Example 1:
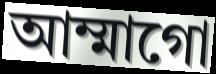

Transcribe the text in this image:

আম্মাগো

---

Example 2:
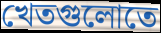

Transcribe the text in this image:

খেতগুলোতে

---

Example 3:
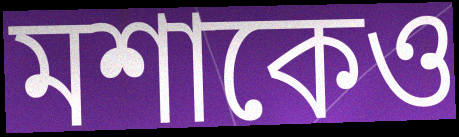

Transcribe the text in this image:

মশাকেও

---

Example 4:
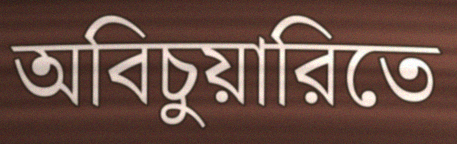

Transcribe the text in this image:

অবিচুয়ারিতে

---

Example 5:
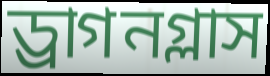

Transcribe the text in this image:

ড্রাগনগ্লাস